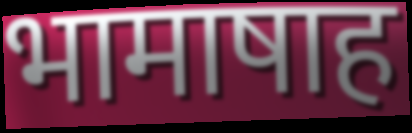
भामाषाह